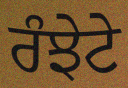
ਰੰਝੇਟੇ